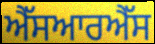
ਐੱਸਆਰਐੱਸ